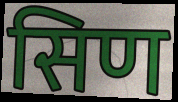
सिण